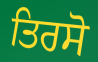
ਤਿਰਸੋ